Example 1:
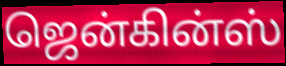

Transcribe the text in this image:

ஜென்கின்ஸ்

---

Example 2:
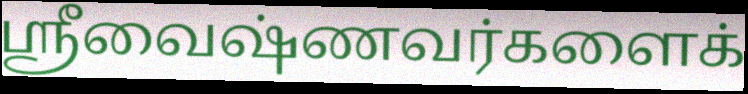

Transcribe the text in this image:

ஸ்ரீவைஷ்ணவர்களைக்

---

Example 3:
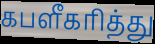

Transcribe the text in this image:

கபளீகரித்து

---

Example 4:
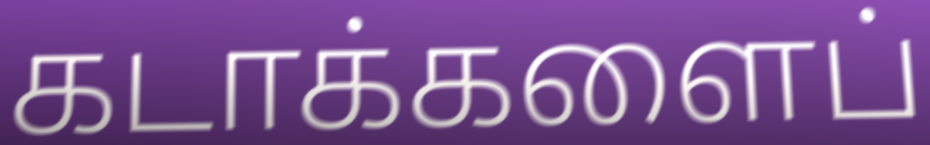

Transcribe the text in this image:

கடாக்களைப்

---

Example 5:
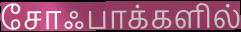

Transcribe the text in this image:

சோஃபாக்களில்